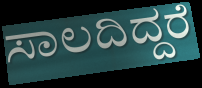
ಸಾಲದಿದ್ದರೆ